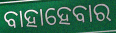
ବାହାହେବାର